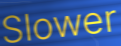
Slower